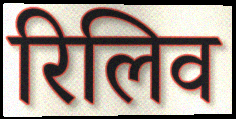
रिलिव